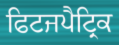
ਫਿਟਜਪੈਟ੍ਰਿਕ